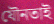
যৌনতাই